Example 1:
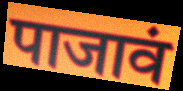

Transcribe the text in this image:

पाजावं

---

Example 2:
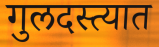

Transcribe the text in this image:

गुलदस्त्यात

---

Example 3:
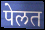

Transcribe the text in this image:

पेलत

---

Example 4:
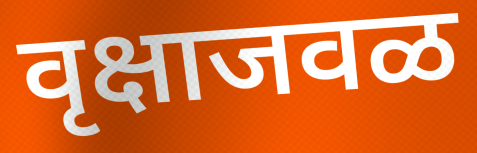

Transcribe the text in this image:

वृक्षाजवळ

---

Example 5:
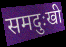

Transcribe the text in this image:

समदुःखी